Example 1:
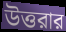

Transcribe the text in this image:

উত্তরার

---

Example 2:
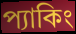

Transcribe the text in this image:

প্যাকিং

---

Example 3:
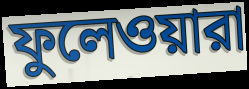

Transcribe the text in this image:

ফুলেওয়ারা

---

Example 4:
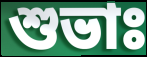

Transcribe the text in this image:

শুভাঃ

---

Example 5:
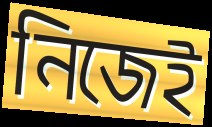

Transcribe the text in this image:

নিজেই